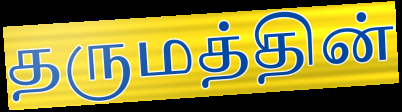
தருமத்தின்